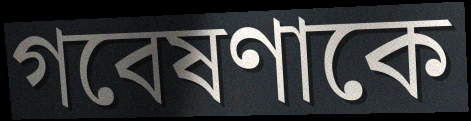
গবেষণাকে